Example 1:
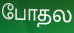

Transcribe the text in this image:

போதல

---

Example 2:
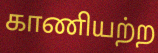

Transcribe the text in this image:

காணியற்ற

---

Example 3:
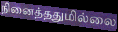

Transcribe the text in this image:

நினைத்ததுமில்லை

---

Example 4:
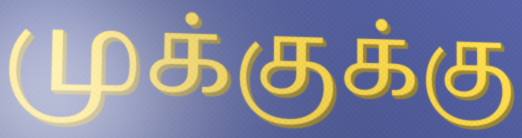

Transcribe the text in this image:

முக்குக்கு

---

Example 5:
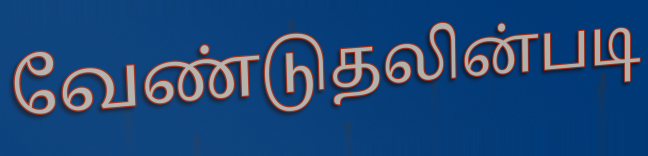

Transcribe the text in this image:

வேண்டுதலின்படி